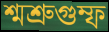
শ্মশ্রুগুম্ফ